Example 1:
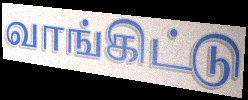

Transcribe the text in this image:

வாங்கிட்டு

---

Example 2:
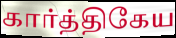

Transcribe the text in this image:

கார்த்திகேய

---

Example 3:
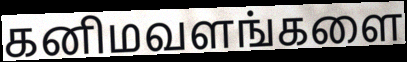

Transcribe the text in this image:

கனிமவளங்களை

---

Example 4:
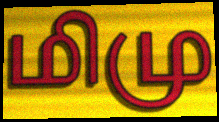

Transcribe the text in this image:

மிமு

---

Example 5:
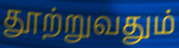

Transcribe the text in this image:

தூற்றுவதும்